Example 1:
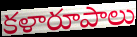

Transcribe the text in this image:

కళారూపాలు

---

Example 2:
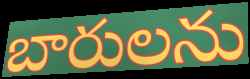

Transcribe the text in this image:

బారులను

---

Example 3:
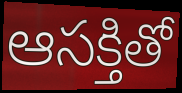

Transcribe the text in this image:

ఆసక్తితో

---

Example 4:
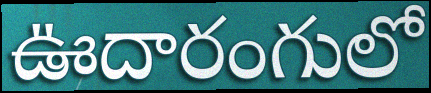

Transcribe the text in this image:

ఊదారంగులో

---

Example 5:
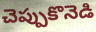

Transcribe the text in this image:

చెప్పుకొనెడి